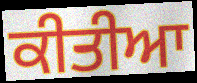
ਕੀਤੀਆ